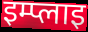
इम्प्लाइ